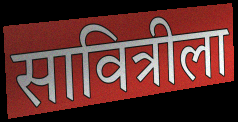
सावित्रीला